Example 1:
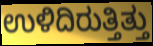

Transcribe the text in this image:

ಉಳಿದಿರುತ್ತಿತ್ತು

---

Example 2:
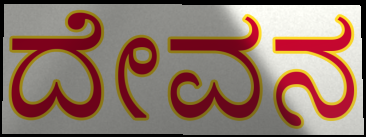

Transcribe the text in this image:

ದೇವನ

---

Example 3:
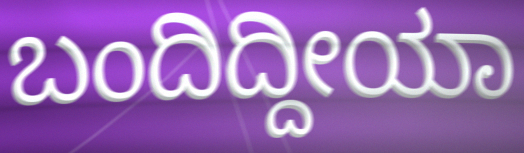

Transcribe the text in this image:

ಬಂದಿದ್ದೀಯಾ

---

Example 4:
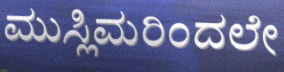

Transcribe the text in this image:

ಮುಸ್ಲಿಮರಿಂದಲೇ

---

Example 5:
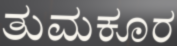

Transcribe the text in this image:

ತುಮಕೂರ